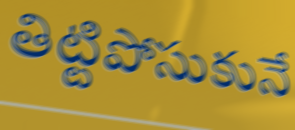
తిట్టిపోసుకునే